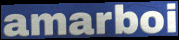
amarboi